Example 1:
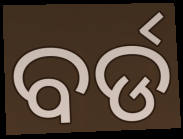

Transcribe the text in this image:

ବର୍ଡ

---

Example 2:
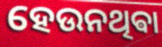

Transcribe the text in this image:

ହେଉନଥିଵା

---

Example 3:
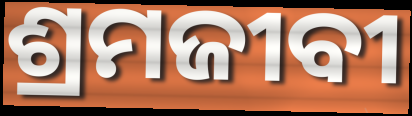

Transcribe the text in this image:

ଶ୍ରମଜୀବୀ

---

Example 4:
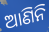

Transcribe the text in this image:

ଆଣିନି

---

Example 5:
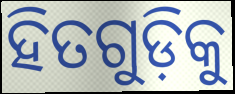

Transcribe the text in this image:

ହିତଗୁଡ଼ିକୁ